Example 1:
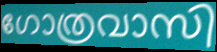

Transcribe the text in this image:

ഗോത്രവാസി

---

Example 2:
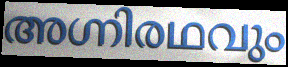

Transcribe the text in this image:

അഗ്നിരഥവും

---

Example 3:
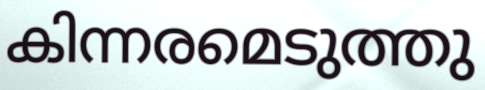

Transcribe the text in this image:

കിന്നരമെടുത്തു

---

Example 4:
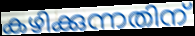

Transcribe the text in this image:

കഴിക്കുന്നതിന്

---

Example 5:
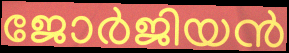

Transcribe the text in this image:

ജോർജിയൻ